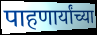
पाहणार्यांच्या